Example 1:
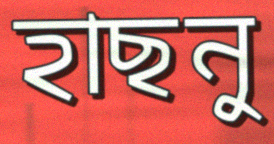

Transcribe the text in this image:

হাছনু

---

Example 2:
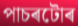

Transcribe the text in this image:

পাচৰটোৰ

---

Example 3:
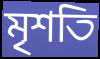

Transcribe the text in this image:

মৃশতি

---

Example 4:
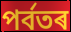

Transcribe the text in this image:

পৰ্বতৰ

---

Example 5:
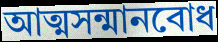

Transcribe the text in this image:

আত্মসন্মানবোধ